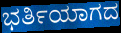
ಭರ್ತಿಯಾಗದ